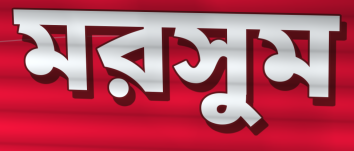
মরসুম